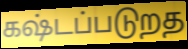
கஷ்டப்படுறத